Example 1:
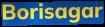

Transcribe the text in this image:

Borisagar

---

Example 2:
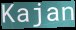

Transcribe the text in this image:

Kajan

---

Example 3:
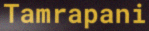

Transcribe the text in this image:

Tamrapani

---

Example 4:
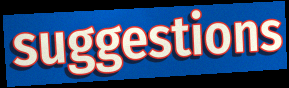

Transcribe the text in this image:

suggestions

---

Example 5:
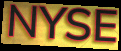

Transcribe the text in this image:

NYSE